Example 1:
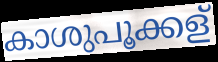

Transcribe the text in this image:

കാശുപൂക്കള്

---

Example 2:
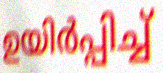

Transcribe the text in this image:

ഉയിർപ്പിച്ച്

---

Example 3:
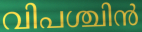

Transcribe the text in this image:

വിപശ്ചിൻ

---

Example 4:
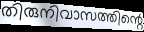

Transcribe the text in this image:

തിരുനിവാസത്തിന്റെ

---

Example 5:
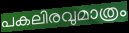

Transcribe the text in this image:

പകലിരവുമാത്രം